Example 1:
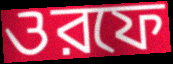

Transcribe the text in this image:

ওরফে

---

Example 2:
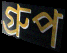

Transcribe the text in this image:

গ্রুপ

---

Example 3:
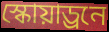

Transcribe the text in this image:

স্কোয়াড্রনে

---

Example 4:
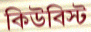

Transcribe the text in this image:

কিউবিস্ট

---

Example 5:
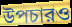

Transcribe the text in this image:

উপচারও